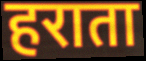
हराता